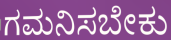
ಗಮನಿಸಬೇಕು